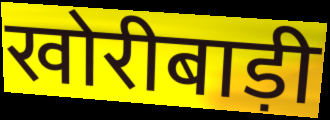
खोरीबाड़ी